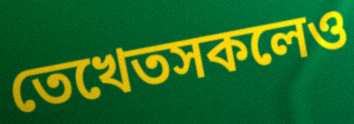
তেখেতসকলেও